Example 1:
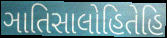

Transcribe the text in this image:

ઞાતિસાલોહિતેહિ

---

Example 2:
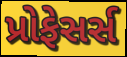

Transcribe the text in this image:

પ્રોફેસર્સ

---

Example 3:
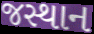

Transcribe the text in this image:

જસ્થાન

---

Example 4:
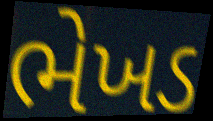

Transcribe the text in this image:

ભેખડ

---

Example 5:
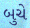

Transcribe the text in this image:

બુચે